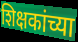
शिक्षकांच्या